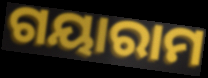
ଗୟାରାମ